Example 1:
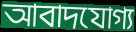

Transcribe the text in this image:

আবাদযোগ্য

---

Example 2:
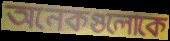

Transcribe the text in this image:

অনেকগুলোকে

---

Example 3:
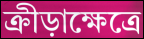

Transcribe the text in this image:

ক্রীড়াক্ষেত্রে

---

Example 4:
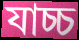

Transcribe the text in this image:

যাচ্চ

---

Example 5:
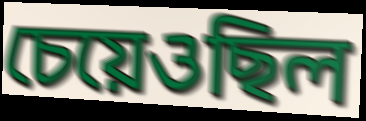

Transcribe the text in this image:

চেয়েওছিল